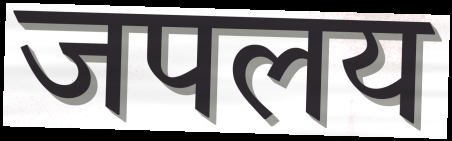
जपलय